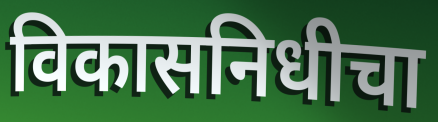
विकासनिधीचा